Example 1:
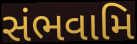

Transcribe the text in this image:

સંભવામિ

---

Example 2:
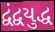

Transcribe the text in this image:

દ્વંદ્વયુદ્ધ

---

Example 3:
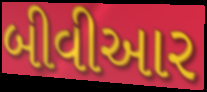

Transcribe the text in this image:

બીવીઆર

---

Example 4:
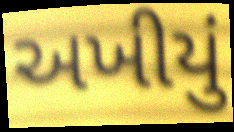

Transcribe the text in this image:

અખીયું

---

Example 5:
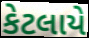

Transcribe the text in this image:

કેટલાયે